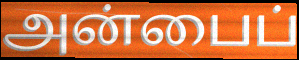
அன்பைப்